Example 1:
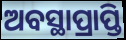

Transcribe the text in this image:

ଅବସ୍ଥାପ୍ରାପ୍ତି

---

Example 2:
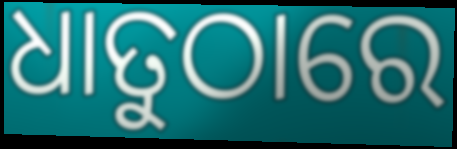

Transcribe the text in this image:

ଧାତୁଠାରେ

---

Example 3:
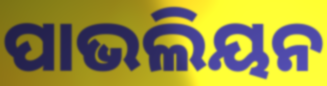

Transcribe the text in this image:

ପାଭଲିୟନ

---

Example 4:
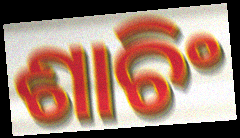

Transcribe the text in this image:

ଶାଚିଂ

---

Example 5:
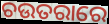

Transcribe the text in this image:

ଚଉତରାରେ